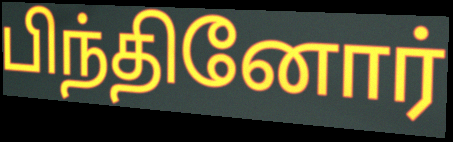
பிந்தினோர்